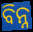
ବିନ୍ନ